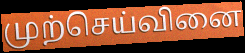
முற்செய்வினை